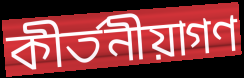
কীর্তনীয়াগণ